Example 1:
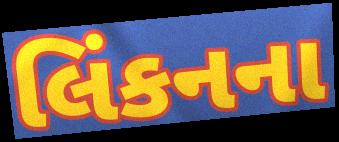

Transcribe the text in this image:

લિંકનના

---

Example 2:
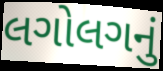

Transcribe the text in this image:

લગોલગનું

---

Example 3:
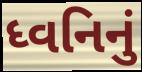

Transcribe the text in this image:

ધ્વનિનું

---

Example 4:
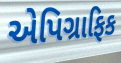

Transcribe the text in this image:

એપિગ્રાફિક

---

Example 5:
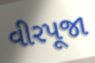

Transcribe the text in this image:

વીરપૂજા